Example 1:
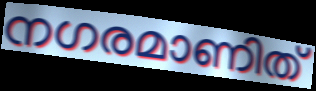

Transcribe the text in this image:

നഗരമാണിത്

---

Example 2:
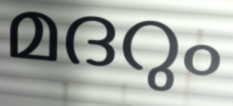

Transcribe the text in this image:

മദറും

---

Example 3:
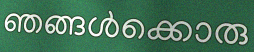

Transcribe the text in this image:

ഞങ്ങൾക്കൊരു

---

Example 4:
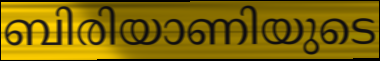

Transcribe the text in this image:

ബിരിയാണിയുടെ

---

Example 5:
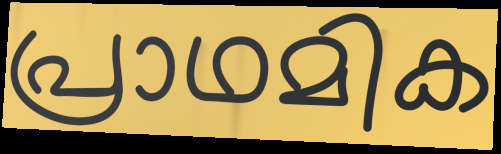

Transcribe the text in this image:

പ്രാഥമിക